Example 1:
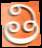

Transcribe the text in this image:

తి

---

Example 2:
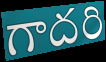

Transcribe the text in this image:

గాదరి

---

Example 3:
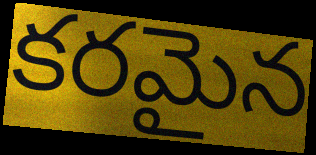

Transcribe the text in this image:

కరమైన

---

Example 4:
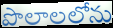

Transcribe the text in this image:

పొలాలలోను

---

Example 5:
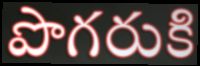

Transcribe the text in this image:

పొగరుకి